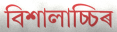
বিশালাচ্চিৰ